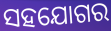
ସହଯୋଗର